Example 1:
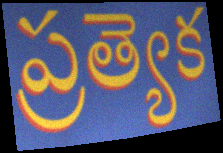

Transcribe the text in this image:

ప్రత్యెక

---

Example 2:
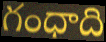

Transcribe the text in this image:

గంధాది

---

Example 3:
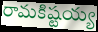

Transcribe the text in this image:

రామకిష్టయ్య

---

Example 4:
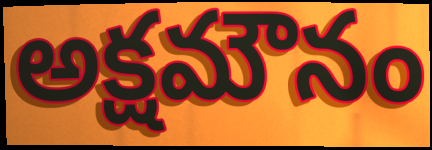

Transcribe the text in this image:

అక్షమౌనం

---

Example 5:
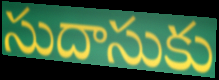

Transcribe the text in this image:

సుదాసుకు